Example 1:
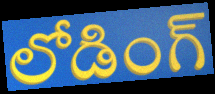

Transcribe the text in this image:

లోడింగ్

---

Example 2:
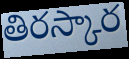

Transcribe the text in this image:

తిరస్కార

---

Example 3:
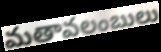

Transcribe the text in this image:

మతావలంబులు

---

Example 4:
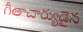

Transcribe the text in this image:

గీతాచార్యుడైన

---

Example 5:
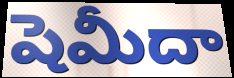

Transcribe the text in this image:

షెమీదా